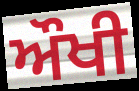
ਔਖੀ